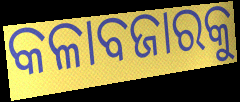
କଳାବଜାରକୁ